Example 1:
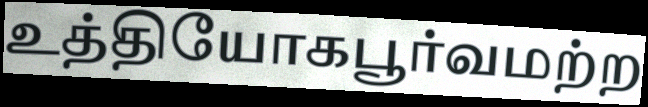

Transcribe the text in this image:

உத்தியோகபூர்வமற்ற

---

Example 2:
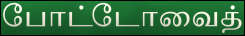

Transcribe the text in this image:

போட்டோவைத்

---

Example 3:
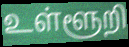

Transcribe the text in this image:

உள்ளூறி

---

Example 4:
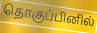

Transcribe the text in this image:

தொகுப்பினில்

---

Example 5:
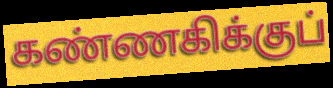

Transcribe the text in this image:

கண்ணகிக்குப்